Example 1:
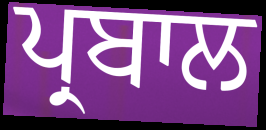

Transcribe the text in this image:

ਪ੍ਰਬਾਲ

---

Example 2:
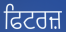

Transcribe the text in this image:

ਫਿਟਰਜ਼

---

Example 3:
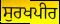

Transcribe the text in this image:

ਸੁਰਖਪੀਰ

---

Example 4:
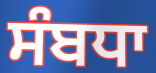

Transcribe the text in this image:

ਸੰਬਧਾ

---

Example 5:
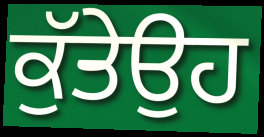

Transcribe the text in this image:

ਕੁੱਤੇਉਹ